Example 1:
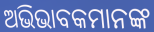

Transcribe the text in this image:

ଅଭିଭାବକମାନଙ୍କ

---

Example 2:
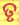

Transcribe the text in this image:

ତୃ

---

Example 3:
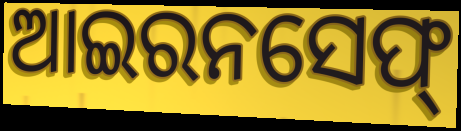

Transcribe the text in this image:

ଆଇରନସେଫ୍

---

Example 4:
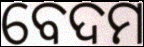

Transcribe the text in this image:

ବେଦମ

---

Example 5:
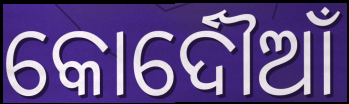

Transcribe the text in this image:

କୋର୍ଦୌଆଁ